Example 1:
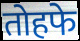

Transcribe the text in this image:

तोहफे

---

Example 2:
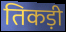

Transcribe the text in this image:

तिकड़ी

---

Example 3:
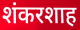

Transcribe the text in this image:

शंकरशाह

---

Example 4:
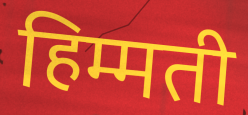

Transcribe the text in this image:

हिम्मती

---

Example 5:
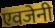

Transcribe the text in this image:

एवजेनी